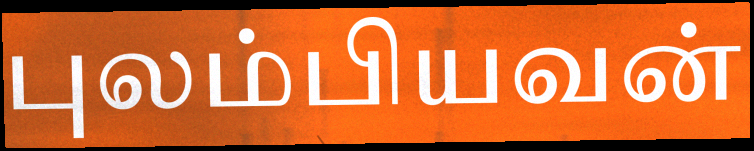
புலம்பியவன்